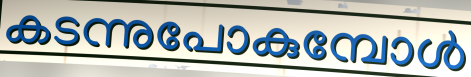
കടന്നുപോകുമ്പോൾ